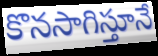
కొనసాగిస్తూనే